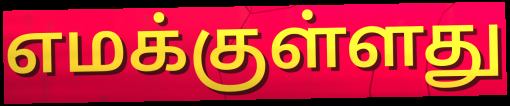
எமக்குள்ளது